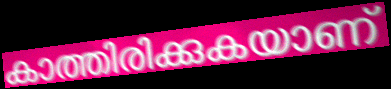
കാത്തിരിക്കുകയാണ്